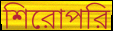
শিরোপরি